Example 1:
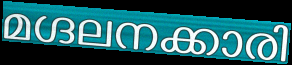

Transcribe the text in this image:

മഗ്ദലനക്കാരി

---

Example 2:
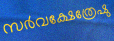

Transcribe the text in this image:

സർവക്ഷേത്രേഷു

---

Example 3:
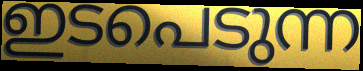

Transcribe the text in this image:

ഇടപെടുന്ന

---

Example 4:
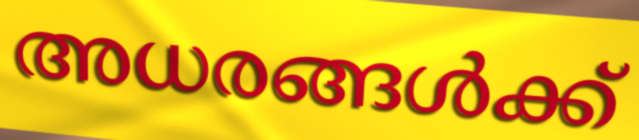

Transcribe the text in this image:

അധരങ്ങൾക്ക്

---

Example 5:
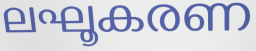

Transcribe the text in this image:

ലഘൂകരണ